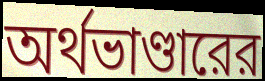
অর্থভাণ্ডারের